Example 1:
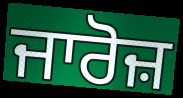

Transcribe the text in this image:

ਜਾਰੋਜ਼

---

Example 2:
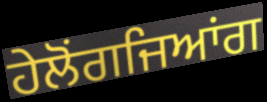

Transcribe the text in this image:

ਹੇਲੋਂਗਜਿਆਂਗ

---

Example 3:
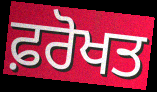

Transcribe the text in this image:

ਫ਼ਰੋਖਤ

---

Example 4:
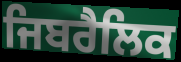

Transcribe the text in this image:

ਜਿਬਰੈਲਿਕ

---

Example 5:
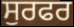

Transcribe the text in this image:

ਸੁਰਫਰ